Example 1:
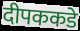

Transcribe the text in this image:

दीपककडे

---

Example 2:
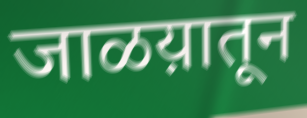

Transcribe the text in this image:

जाळय़ातून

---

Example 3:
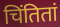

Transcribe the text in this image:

चिंतितां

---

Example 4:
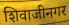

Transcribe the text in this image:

शिवाजीनगर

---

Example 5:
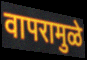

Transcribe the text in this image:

वापरामुळे